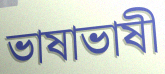
ভাষাভাষী